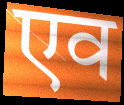
एव